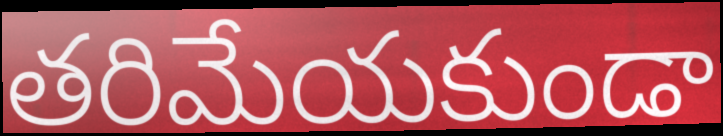
తరిమేయకుండా